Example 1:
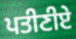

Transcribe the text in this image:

ਪਤੀਣੀਏ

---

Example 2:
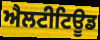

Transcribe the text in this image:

ਐਲਟੀਟਿਊਡ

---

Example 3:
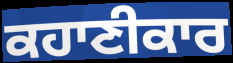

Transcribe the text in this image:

ਕਹਾਣੀਕਾਰ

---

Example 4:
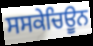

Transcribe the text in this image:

ਸਸਕੇਚਿਊਨ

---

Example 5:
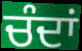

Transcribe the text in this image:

ਚੰਦਾਂ